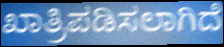
ಖಾತ್ರಿಪಡಿಸಲಾಗಿದೆ